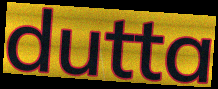
dutta